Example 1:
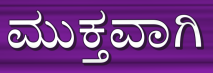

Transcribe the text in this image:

ಮುಕ್ತವಾಗಿ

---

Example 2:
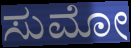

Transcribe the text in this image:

ಸುಮೋ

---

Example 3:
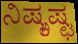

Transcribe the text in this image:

ನಿಷ್ಕೃಷ್ಟ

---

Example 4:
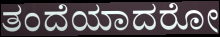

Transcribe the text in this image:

ತಂದೆಯಾದರೋ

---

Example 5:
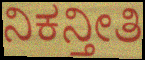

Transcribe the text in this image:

ನಿಕನ್ತೀತಿ